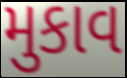
મુકાવ